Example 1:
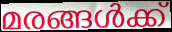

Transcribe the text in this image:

മരങ്ങൾക്ക്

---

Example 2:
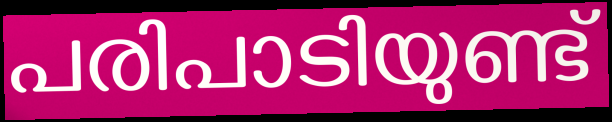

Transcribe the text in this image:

പരിപാടിയുണ്ട്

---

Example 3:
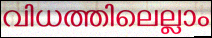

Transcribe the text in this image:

വിധത്തിലെല്ലാം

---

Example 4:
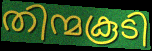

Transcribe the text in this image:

തിന്മകൂടി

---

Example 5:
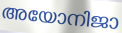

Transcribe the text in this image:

അയോനിജാ